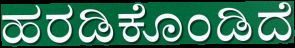
ಹರಡಿಕೊಂಡಿದೆ